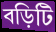
বড়িটি